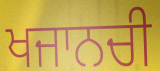
ਖਜਾਨਚੀ